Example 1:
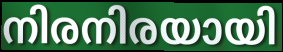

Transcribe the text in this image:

നിരനിരയായി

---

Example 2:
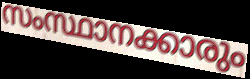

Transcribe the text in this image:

സംസ്ഥാനക്കാരും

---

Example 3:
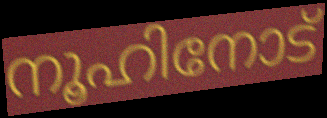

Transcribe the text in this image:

നൂഹിനോട്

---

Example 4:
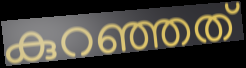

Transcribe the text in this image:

കുറഞ്ഞത്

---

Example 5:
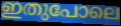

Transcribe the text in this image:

ഇതുപോലെ